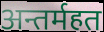
अन्तर्महत